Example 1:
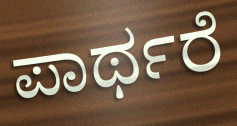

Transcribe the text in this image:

ಪಾರ್ಥರೆ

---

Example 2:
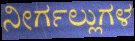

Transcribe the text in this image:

ನೀರ್ಗಲ್ಲುಗಳ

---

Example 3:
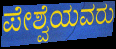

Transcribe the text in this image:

ಪೇಶ್ವೆಯವರು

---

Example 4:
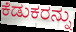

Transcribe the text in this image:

ಕೆಡುಕರನ್ನು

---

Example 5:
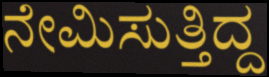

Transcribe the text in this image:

ನೇಮಿಸುತ್ತಿದ್ದ